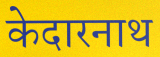
केदारनाथ